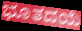
ಭೂತದಯೆ